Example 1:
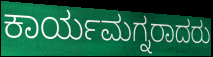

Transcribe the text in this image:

ಕಾರ್ಯಮಗ್ನರಾದರು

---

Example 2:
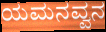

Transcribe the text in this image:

ಯಮನವ್ವನ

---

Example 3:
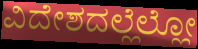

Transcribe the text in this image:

ವಿದೇಶದಲ್ಲೆಲ್ಲೋ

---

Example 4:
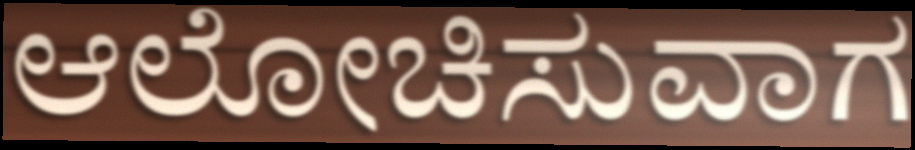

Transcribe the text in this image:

ಆಲೋಚಿಸುವಾಗ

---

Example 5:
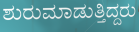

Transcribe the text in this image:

ಶುರುಮಾಡುತ್ತಿದ್ದರು